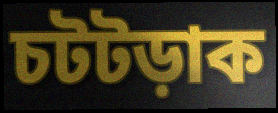
চটটড়াক